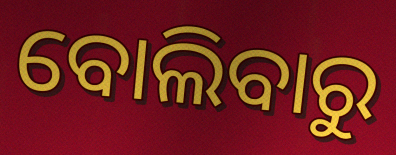
ବୋଲିବାରୁ